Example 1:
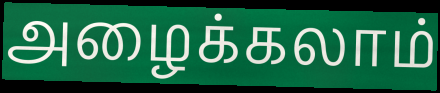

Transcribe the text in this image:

அழைக்கலாம்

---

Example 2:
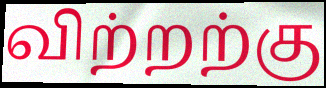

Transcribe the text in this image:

விற்றற்கு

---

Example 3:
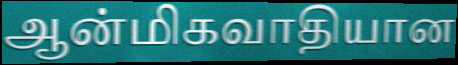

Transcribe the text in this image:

ஆன்மிகவாதியான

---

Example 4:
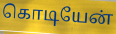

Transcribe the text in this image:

கொடியேன்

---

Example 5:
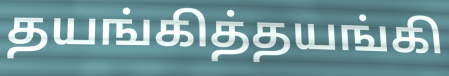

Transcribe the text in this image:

தயங்கித்தயங்கி